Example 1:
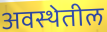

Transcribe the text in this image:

अवस्थेतील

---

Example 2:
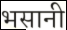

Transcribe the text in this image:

भसानी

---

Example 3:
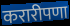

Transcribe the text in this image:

करारीपणा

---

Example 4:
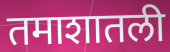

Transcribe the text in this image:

तमाशातली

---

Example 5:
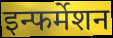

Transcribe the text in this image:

इन्फर्मेशन